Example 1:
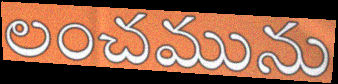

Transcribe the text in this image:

లంచమును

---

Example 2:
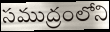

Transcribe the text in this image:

సముద్రంలోని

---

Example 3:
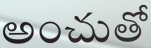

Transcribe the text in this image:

అంచుతో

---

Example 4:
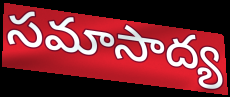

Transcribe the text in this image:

సమాసాద్య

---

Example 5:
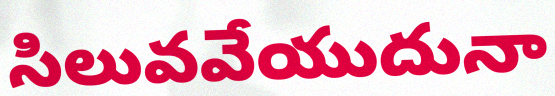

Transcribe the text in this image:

సిలువవేయుదునా